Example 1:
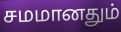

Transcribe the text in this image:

சமமானதும்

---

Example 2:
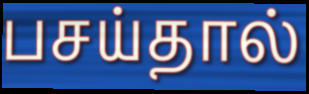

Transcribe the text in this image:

பசய்தால்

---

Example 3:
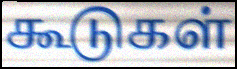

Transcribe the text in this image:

கூடுகள்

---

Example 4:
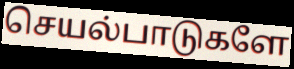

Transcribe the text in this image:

செயல்பாடுகளே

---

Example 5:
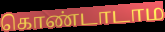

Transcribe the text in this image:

கொண்டாடாம